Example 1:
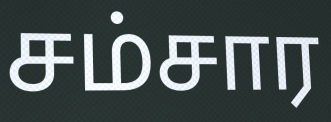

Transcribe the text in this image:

சம்சார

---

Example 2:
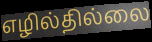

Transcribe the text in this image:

எழில்தில்லை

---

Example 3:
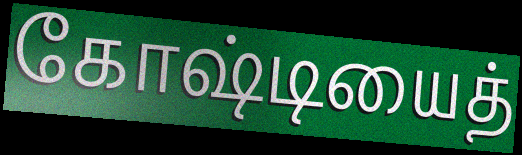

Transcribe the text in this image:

கோஷ்டியைத்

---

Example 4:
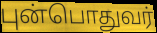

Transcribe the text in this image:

புன்பொதுவர்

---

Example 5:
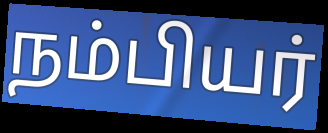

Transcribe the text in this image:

நம்பியர்